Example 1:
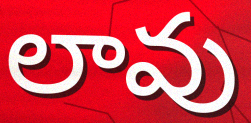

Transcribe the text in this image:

లావు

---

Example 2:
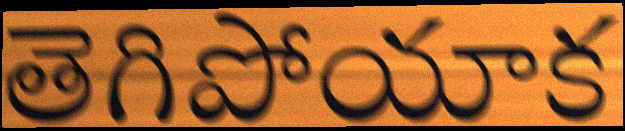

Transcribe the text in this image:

తెగిపోయాక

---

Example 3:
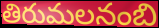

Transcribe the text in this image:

తిరుమలనంబి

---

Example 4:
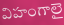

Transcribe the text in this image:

విహంగాలై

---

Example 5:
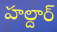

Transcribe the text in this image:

హల్దార్